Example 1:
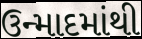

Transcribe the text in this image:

ઉન્માદમાંથી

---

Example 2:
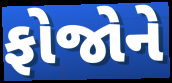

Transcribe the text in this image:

ફોજોને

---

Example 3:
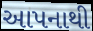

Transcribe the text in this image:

આપનાથી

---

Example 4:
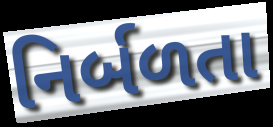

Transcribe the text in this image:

નિર્બળતા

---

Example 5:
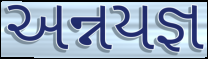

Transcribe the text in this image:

અન્નયજ્ઞ